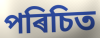
পৰিচিত